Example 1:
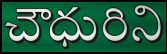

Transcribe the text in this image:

చౌధురిని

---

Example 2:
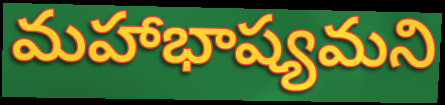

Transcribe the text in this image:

మహాభాష్యమని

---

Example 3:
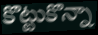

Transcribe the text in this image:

కొట్టుకొన్నా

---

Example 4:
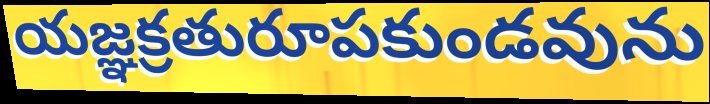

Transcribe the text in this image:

యజ్ఞక్రతురూపకుండవును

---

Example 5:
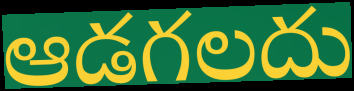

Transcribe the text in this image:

ఆడగలదు